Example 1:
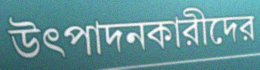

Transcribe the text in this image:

উৎপাদনকারীদের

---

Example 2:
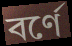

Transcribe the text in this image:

বর্ণে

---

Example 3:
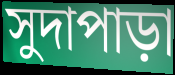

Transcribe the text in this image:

সুদাপাড়া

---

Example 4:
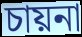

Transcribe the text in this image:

চায়না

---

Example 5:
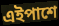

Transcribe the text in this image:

এইপাশে